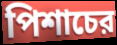
পিশাচের